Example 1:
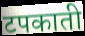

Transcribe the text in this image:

टपकाती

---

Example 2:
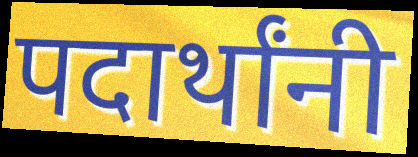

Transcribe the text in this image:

पदार्थांनी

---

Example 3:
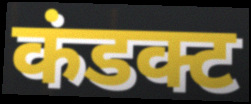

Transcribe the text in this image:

कंडक्ट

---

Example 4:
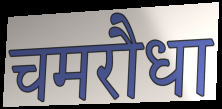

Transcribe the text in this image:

चमरौधा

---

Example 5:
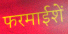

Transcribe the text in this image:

फरमाईशें